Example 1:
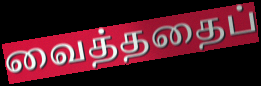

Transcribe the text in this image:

வைத்ததைப்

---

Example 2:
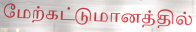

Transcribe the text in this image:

மேற்கட்டுமானத்தில்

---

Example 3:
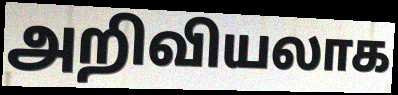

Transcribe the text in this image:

அறிவியலாக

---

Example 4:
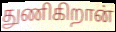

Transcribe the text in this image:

துணிகிறான்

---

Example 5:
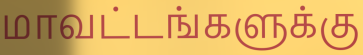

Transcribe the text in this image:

மாவட்டங்களுக்கு